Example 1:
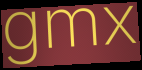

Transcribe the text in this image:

gmx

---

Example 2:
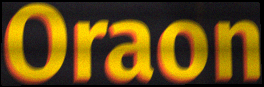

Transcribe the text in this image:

Oraon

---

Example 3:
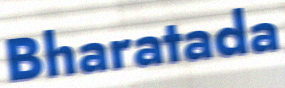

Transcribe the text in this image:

Bharatada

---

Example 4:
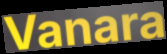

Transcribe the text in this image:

Vanara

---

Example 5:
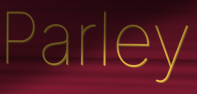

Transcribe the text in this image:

Parley